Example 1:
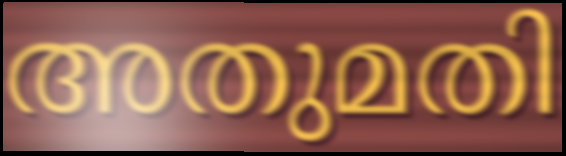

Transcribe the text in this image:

അതുമതി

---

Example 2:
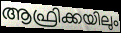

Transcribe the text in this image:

ആഫ്രിക്കയിലും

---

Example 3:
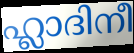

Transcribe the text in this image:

ഹ്ലാദിനീ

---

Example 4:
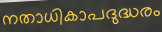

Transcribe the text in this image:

നതാധികാപദുദ്ധരം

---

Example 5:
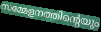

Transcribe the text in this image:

സമ്മേളനത്തിന്റെയും